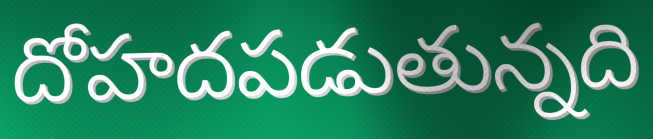
దోహదపడుతున్నది